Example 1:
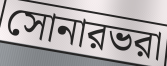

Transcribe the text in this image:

সোনারভরা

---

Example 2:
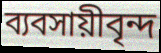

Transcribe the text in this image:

ব্যবসায়ীবৃন্দ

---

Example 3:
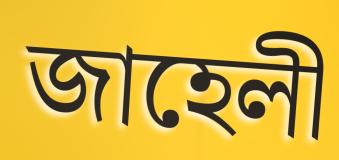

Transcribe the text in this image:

জাহেলী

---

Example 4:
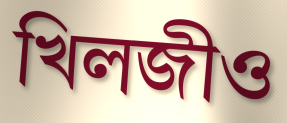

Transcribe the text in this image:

খিলজীও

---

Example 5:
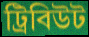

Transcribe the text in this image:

ট্রিবিউট